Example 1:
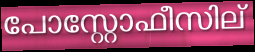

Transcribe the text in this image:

പോസ്റ്റോഫീസില്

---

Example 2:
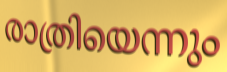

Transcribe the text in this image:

രാത്രിയെന്നും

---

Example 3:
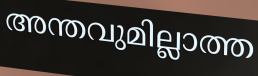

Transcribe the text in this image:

അന്തവുമില്ലാത്ത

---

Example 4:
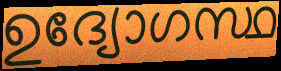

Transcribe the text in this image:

ഉദ്യോഗസ്ഥ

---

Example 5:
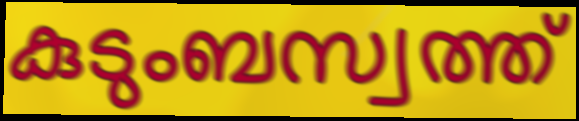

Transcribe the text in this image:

കുടുംബസ്വത്ത്